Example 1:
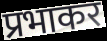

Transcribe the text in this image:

प्रभाकर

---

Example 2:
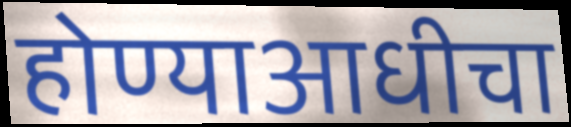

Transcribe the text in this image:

होण्याआधीचा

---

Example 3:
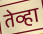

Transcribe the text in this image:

तेव्हा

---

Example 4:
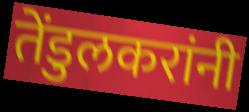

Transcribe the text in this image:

तेंडुलकरांनी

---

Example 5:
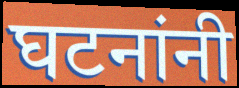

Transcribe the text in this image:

घटनांनी